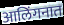
आलिंगनात